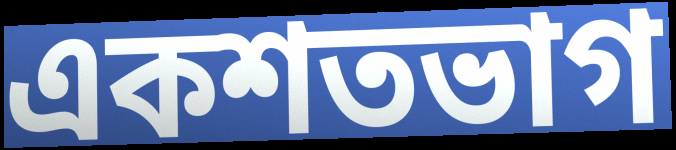
একশতভাগ